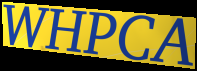
WHPCA